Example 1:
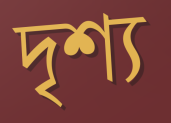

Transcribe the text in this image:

দৃশ্য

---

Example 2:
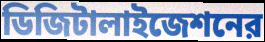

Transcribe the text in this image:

ডিজিটালাইজেশনের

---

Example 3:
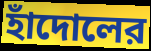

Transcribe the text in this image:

হাঁদোলের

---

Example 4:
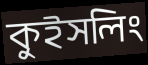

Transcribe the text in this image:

কুইসলিং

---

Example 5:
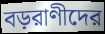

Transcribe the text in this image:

বড়রাণীদের